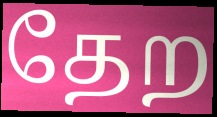
தேற